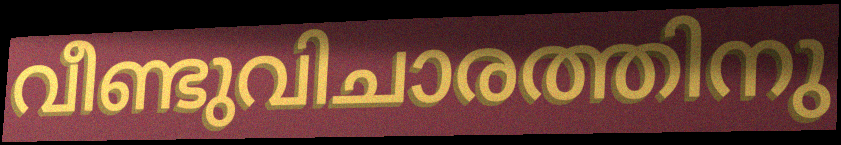
വീണ്ടുവിചാരത്തിനു